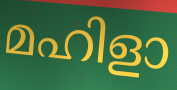
മഹിളാ